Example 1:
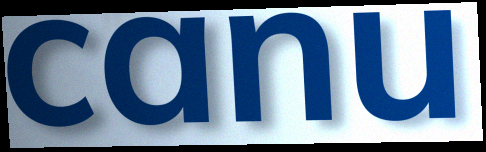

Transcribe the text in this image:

canu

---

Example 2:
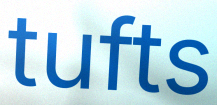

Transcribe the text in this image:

tufts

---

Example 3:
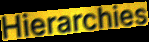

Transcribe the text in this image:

Hierarchies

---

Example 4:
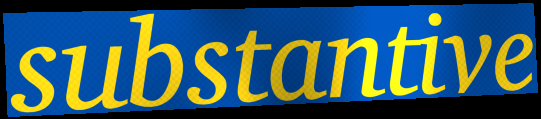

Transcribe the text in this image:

substantive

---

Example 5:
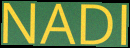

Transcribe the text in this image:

NADI